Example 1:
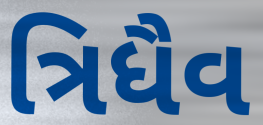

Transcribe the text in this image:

ત્રિધૈવ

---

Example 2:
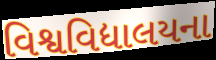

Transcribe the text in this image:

વિશ્વવિદ્યાલયના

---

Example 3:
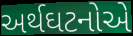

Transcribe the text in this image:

અર્થઘટનોએ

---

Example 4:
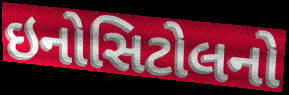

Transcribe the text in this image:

ઇનોસિટોલનો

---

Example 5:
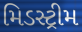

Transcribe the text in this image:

મિડસ્ટ્રીમ